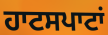
ਹਾਟਸਪਾਟਾਂ